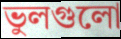
ভুলগুলো